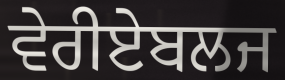
ਵੇਰੀਏਬਲਜ